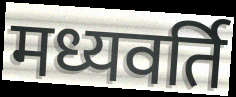
मध्यवर्ति